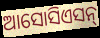
ଆସୋସିଏସନ୍